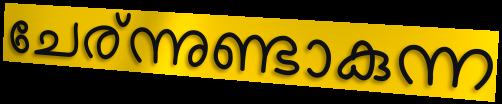
ചേര്ന്നുണ്ടാകുന്ന